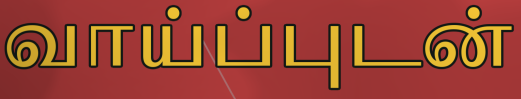
வாய்ப்புடன்